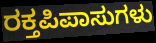
ರಕ್ತಪಿಪಾಸುಗಳು